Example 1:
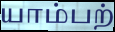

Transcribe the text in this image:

யாம்பற்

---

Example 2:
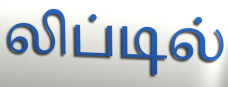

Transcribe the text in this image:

லிப்டில்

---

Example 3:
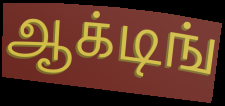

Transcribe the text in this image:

ஆக்டிங்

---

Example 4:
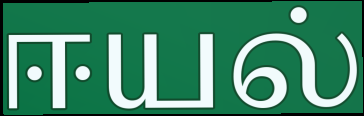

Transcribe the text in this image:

ஈயல்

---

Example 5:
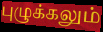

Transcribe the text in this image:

புழுக்கலும்